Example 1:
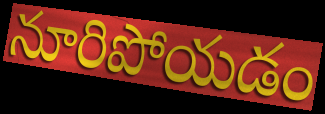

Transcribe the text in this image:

నూరిపోయడం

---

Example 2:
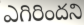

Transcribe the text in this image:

ఎగిరిందని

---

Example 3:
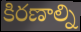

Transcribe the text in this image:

కిరణాల్ని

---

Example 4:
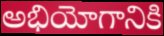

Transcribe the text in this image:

అభియోగానికి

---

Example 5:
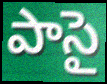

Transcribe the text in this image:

పాసై